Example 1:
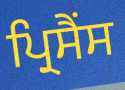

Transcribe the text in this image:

ਪ੍ਰਿਸੈਂਸ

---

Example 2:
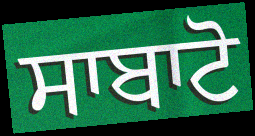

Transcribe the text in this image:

ਸਾਬਾਟੋ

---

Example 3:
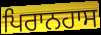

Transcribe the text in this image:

ਪਿਰਾਨਹਾਸ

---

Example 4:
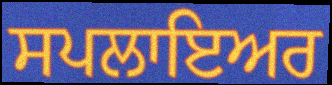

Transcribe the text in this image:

ਸਪਲਾਇਅਰ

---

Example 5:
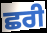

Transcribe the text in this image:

ਛਰੀ